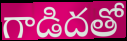
గాడిదతో